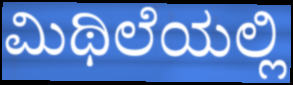
ಮಿಥಿಲೆಯಲ್ಲಿ